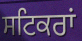
ਸਟਿਕਰਾਂ